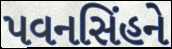
પવનસિંહને